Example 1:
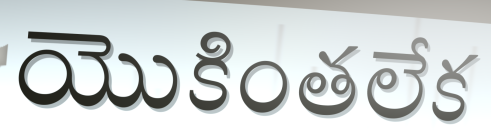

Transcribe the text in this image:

యొకింతలేక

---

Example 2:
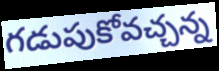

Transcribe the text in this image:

గడుపుకోవచ్చన్న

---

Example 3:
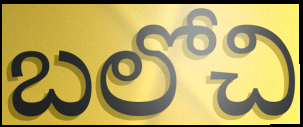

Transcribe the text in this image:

బలోచి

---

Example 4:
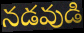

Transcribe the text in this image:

నడవుడి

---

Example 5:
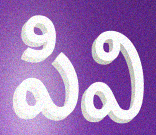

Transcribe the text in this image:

పివి